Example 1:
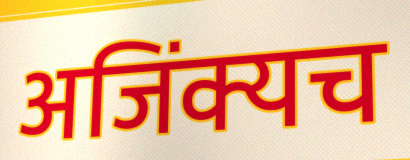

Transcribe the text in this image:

अजिंक्यच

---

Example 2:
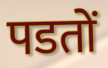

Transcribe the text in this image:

पडतों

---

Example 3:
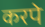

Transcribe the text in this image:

करपे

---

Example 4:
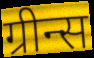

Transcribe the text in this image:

ग्रीन्स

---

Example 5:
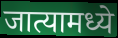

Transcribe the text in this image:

जात्यामध्ये